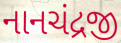
નાનચંદ્રજી